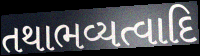
તથાભવ્યત્વાદિ